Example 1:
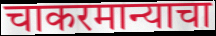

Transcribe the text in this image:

चाकरमान्याचा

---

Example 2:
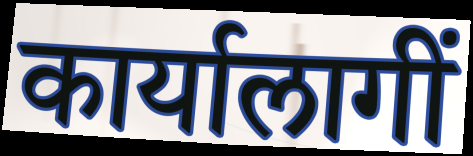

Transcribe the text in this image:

कार्यालागीं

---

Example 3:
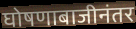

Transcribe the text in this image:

घोषणाबाजीनंतर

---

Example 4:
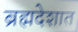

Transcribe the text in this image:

ब्रह्मदेशात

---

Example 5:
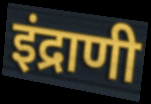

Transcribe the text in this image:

इंद्राणी